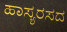
ಹಾಸ್ಯರಸದ